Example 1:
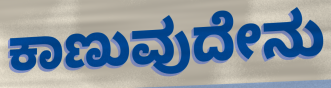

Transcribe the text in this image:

ಕಾಣುವುದೇನು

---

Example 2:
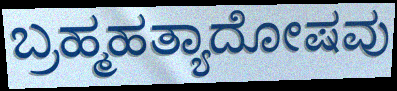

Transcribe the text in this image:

ಬ್ರಹ್ಮಹತ್ಯಾದೋಷವು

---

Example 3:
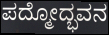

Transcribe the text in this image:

ಪದ್ಮೋದ್ಭವನ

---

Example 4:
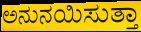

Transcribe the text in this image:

ಅನುನಯಿಸುತ್ತಾ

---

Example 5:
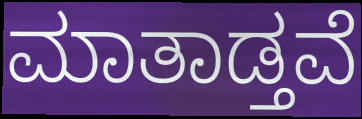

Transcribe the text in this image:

ಮಾತಾಡ್ತವೆ